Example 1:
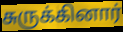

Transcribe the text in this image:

சுருக்கினார்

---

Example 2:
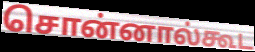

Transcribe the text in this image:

சொன்னால்கூட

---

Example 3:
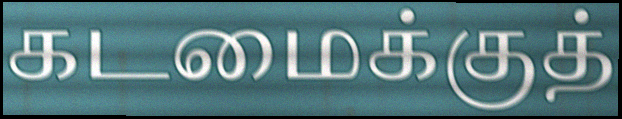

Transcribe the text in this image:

கடமைக்குத்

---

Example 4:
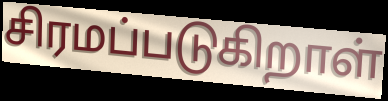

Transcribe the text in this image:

சிரமப்படுகிறாள்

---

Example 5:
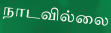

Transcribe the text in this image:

நாடவில்லை